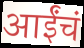
आईंचं